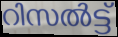
റിസൽട്ട്